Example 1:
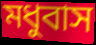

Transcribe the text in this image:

মধুবাস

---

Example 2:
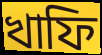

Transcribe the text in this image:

খাফি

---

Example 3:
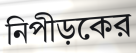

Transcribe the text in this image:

নিপীড়কের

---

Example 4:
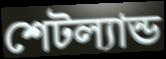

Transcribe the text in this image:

শেটল্যান্ড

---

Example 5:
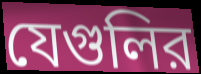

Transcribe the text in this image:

যেগুলির